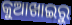
କୁଆଖାଇରୁ